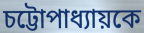
চট্টোপাধ্যায়কে